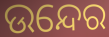
ଉନ୍ଦେର